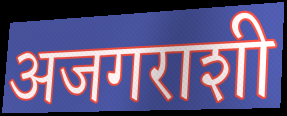
अजगराशी